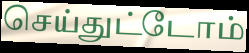
செய்துட்டோம்